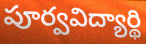
పూర్వవిద్యార్థి